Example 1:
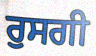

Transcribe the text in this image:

ਰੁਸਗੀ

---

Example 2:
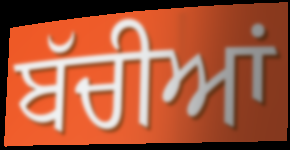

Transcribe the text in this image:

ਬੱਚੀਆਂ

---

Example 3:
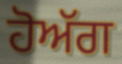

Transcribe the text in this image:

ਹੋਅੱਗ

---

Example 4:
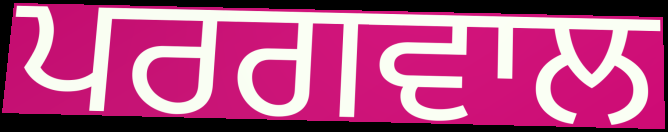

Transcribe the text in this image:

ਪਰਗਵਾਲ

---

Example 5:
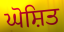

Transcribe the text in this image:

ਘੋਸ਼ਿਤ